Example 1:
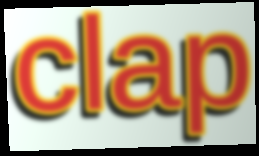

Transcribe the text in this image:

clap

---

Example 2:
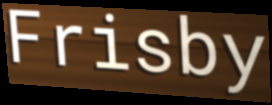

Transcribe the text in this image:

Frisby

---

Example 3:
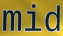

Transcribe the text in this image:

mid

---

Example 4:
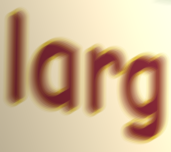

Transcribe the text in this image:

larg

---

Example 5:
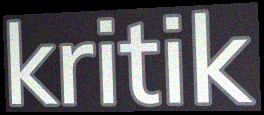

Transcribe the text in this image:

kritik